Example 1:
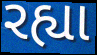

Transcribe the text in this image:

રહ્યા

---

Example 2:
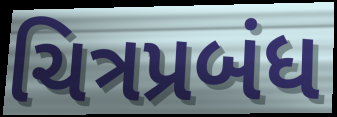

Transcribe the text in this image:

ચિત્રપ્રબંધ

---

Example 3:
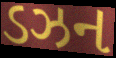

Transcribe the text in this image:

ડઝન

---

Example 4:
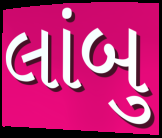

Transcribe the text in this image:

લાંબુ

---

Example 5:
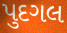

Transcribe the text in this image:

પુદગલ